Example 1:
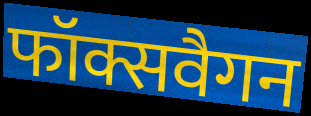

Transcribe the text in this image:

फॉक्सवैगन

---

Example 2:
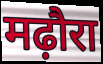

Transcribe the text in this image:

मढ़ौरा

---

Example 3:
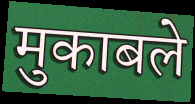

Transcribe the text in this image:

मुकाबले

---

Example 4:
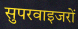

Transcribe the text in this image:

सुपरवाइजरों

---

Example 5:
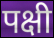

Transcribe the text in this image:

पक्षी